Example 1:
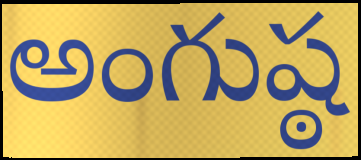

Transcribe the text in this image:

అంగుష్ఠ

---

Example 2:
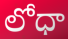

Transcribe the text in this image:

లోధా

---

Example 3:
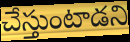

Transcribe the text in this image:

చేస్తుంటాడని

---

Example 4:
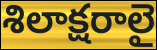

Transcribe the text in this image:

శిలాక్షరాలై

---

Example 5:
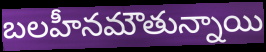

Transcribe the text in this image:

బలహీనమౌతున్నాయి